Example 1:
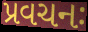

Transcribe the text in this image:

પ્રવચનઃ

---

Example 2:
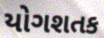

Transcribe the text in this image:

યોગશતક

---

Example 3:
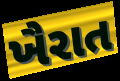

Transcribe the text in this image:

ખૈરાત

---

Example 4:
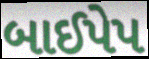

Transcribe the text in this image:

બાઈપેપ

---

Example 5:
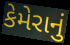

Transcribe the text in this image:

કેમેરાનું